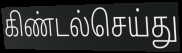
கிண்டல்செய்து